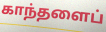
காந்தளைப்